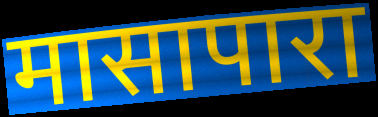
मासापारा